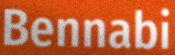
Bennabi